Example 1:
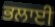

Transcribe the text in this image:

ਭਲਾਈ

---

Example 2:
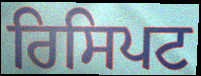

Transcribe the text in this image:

ਰਿਸਿਪਟ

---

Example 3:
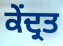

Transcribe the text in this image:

ਕੇਂਦ੍ਰਤ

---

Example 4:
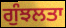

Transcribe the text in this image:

ਗੁੰਝਲਤਾ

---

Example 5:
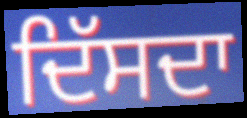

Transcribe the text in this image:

ਦਿੱਸਦਾ